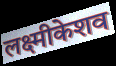
लक्ष्मीकेशव